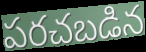
పరచబడిన